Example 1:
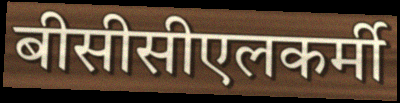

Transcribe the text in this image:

बीसीसीएलकर्मी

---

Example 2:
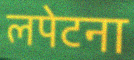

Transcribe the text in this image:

लपेटना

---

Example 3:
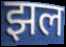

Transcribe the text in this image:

झल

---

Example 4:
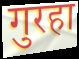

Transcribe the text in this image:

गुरहा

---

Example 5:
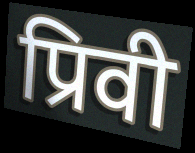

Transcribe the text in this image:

प्रिवी